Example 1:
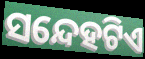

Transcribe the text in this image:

ସନ୍ଦେହଟିଏ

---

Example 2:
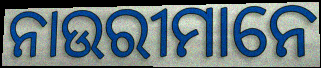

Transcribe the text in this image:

ନାଉରୀମାନେ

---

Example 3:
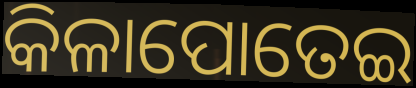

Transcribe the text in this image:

କିଳାପୋତେଇ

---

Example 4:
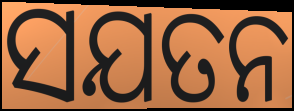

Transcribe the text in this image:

ସଯତନ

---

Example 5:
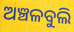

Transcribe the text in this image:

ଅଞ୍ଚଳବୁଲି